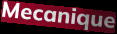
Mecanique